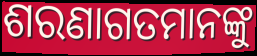
ଶରଣାଗତମାନଙ୍କୁ